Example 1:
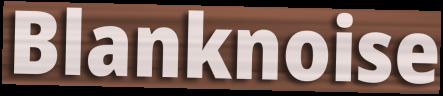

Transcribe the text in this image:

Blanknoise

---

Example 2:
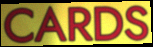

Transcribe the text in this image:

CARDS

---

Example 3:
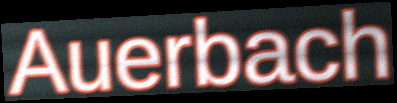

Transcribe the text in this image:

Auerbach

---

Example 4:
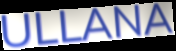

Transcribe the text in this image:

ULLANA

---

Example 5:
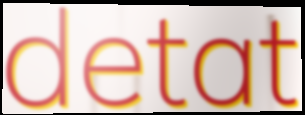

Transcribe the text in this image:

detat